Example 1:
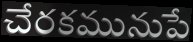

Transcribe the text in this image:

చేరకమునుపే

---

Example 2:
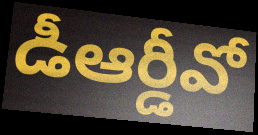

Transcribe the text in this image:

డీఆర్డీవో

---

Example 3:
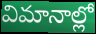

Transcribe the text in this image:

విమానాల్లో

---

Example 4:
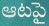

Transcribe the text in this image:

ఆటపై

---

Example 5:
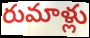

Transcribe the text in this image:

రుమాళ్లు